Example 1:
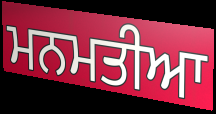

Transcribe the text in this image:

ਮਨਮਤੀਆ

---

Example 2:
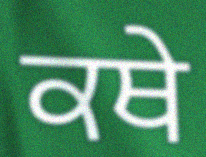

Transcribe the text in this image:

ਕਥੇ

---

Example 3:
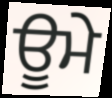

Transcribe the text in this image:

ਊਮੇ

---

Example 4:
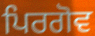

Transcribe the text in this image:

ਪਿਰਗੋਵ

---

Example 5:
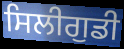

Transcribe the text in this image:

ਸਿਲੀਗੁਡੀ